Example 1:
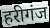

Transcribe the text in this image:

हरीगंज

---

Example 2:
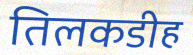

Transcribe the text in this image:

तिलकडीह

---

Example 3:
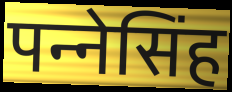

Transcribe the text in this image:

पन्नेसिंह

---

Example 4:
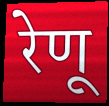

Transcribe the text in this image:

रेणू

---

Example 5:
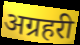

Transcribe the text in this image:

अग्रहरी